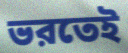
ভরতেই